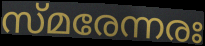
സ്മരേന്നരഃ